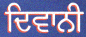
ਦਿਵਾਨੀ